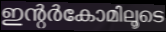
ഇന്റർകോമിലൂടെ